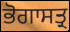
ਭੋਗਾਸਤ੍ਰ